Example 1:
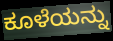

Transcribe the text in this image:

ಕೂಳೆಯನ್ನು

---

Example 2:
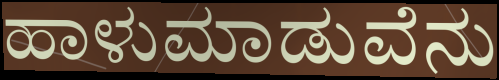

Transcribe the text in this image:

ಹಾಳುಮಾಡುವೆನು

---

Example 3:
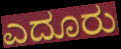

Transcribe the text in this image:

ಎದೂರು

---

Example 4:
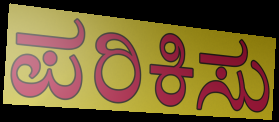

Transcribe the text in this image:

ಪರಿಕಿಸು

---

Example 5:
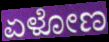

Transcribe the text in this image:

ಏಳೋಣ